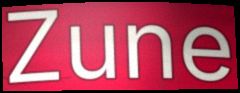
Zune